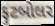
ફુટબોલર